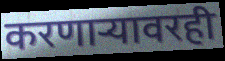
करणाऱ्यावरही